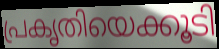
പ്രകൃതിയെക്കൂടി